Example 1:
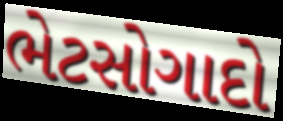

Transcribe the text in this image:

ભેટસોગાદો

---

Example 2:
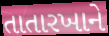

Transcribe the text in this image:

તાતારખાને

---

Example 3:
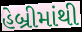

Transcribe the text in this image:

હેબ્રીમાંથી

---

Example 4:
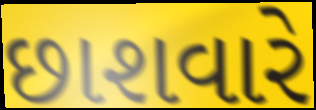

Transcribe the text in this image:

છાશવારે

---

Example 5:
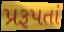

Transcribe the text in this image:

પ્રરૂપતાં